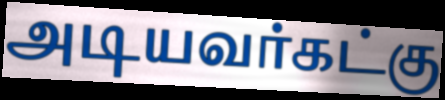
அடியவர்கட்கு